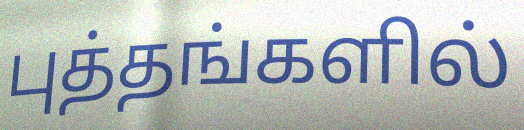
புத்தங்களில்